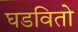
घडवितो